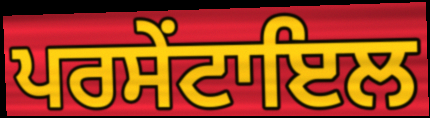
ਪਰਸੇਂਟਾਇਲ